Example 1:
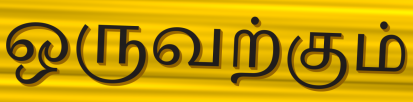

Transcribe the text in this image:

ஒருவற்கும்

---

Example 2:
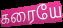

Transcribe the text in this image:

கரையே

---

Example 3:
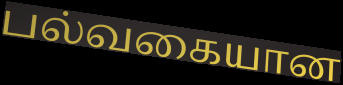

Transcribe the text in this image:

பல்வகையான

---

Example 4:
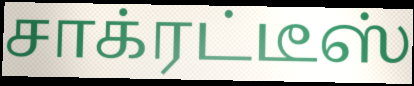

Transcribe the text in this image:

சாக்ரட்டீஸ்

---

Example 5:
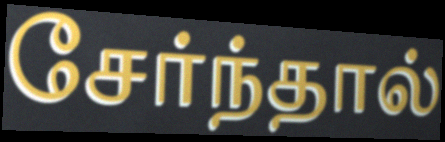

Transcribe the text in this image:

சேர்ந்தால்